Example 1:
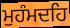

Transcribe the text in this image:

ਮੁਹੰਮਦਹਿ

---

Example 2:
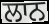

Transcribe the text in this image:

ਲਾਨ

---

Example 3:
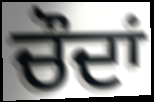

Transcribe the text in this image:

ਚੌਦਾਂ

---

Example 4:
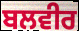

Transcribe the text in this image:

ਬਲਵੀਰ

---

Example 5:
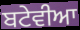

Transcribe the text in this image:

ਬਟੇਵੀਆ